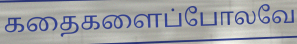
கதைகளைப்போலவே